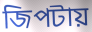
জিপটায়